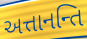
અત્તાનન્તિ